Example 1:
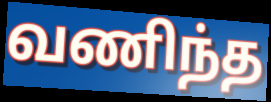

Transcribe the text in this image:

வணிந்த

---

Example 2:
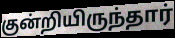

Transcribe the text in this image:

குன்றியிருந்தார்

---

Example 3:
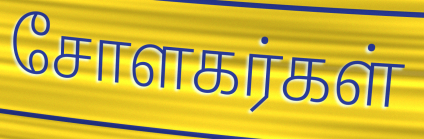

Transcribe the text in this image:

சோளகர்கள்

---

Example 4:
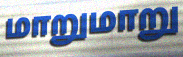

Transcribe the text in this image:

மாறுமாறு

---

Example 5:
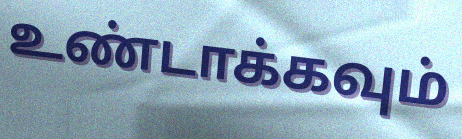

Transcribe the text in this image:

உண்டாக்கவும்